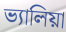
ভ্যালিয়া